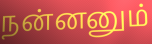
நன்னனும்